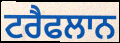
ਟਰੈਫਲਾਨ